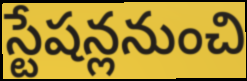
స్టేషన్లనుంచి